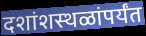
दशांशस्थळांपर्यंत